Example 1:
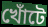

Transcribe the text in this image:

খোঁটে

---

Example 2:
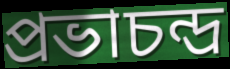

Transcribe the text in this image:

প্রভাচন্দ্র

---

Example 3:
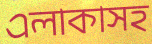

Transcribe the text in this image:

এলাকাসহ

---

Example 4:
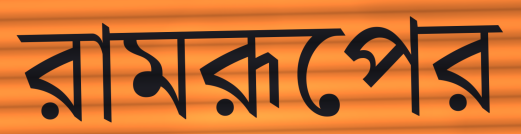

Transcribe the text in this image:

রামরূপের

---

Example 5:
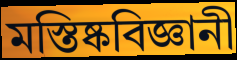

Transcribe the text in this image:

মস্তিষ্কবিজ্ঞানী